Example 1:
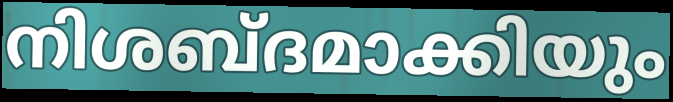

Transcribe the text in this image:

നിശബ്ദമാക്കിയും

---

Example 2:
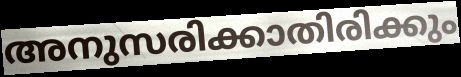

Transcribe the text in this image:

അനുസരിക്കാതിരിക്കും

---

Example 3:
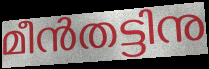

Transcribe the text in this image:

മീൻതട്ടിനു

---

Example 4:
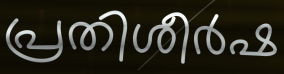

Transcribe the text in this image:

പ്രതിശീർഷ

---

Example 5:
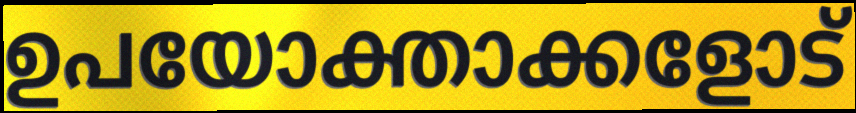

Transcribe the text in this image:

ഉപയോക്താക്കളോട്